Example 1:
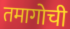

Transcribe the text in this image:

तमागोची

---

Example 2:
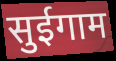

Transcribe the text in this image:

सुईगाम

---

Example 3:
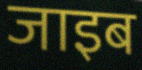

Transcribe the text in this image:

जाइब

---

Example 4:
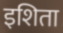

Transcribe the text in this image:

इशिता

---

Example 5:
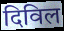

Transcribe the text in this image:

दिविल